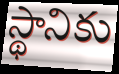
స్థానికు